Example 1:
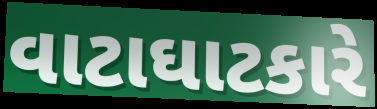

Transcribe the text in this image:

વાટાઘાટકારે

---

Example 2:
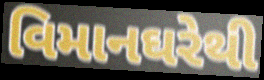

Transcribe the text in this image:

વિમાનઘરેથી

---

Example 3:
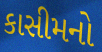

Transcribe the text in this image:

કાસીમનો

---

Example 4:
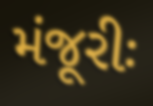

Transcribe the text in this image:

મંજૂરીઃ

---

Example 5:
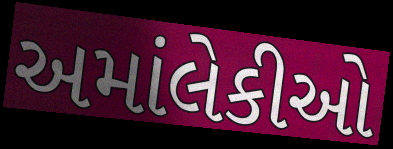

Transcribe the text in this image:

અમાંલેકીઓ